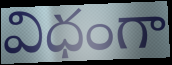
విధంగా